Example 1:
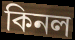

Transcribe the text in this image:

কিনল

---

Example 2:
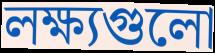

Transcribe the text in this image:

লক্ষ্যগুলো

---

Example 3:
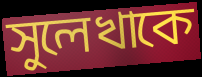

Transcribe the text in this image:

সুলেখাকে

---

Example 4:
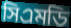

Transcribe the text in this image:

সিএমডি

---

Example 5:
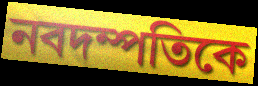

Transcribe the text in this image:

নবদম্পতিকে